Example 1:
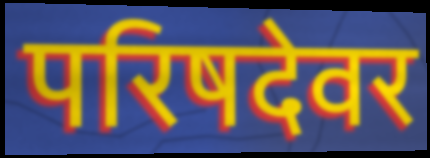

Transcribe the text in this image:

परिषदेवर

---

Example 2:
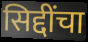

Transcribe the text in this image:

सिद्दींचा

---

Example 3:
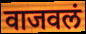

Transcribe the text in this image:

वाजवलं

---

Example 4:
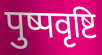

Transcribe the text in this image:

पुष्पवृष्टि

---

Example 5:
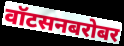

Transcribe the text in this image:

वॉटसनबरोबर